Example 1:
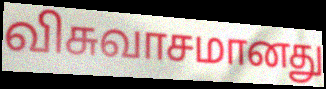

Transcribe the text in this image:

விசுவாசமானது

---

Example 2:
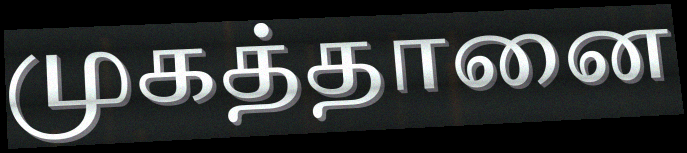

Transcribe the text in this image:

முகத்தானை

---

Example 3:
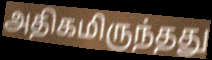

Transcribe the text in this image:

அதிகமிருந்தது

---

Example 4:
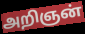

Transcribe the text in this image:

அறிஞன்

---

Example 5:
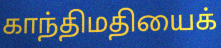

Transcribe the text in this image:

காந்திமதியைக்